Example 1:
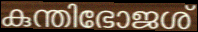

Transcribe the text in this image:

കുന്തിഭോജശ്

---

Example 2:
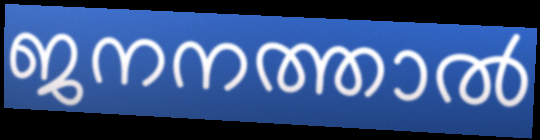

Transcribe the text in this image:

ജനനത്താൽ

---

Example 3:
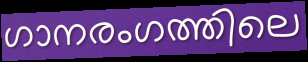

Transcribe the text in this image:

ഗാനരംഗത്തിലെ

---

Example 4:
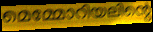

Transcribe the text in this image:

മെമ്മോറിയലിന്റെ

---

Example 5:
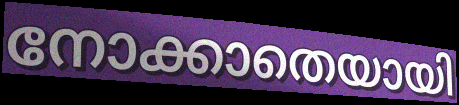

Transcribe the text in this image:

നോക്കാതെയായി